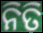
ନିତି